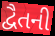
દ્વૈતની